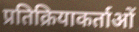
प्रतिक्रियाकर्ताओं